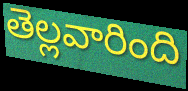
తెల్లవారింది